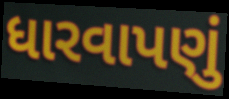
ધારવાપણું